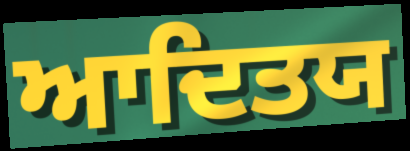
ਆਦਿਤਯ